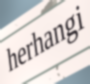
herhangi